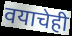
वयाचेही